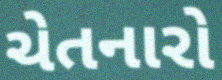
ચેતનારો